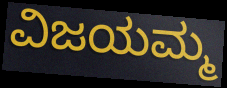
ವಿಜಯಮ್ಮ